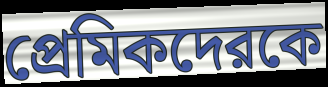
প্রেমিকদেরকে